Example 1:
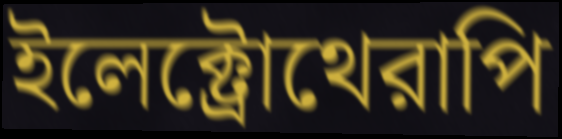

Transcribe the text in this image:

ইলেক্ট্রোথেরাপি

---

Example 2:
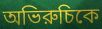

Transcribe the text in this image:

অভিরুচিকে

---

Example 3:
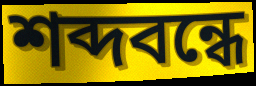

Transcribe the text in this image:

শব্দবন্ধে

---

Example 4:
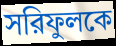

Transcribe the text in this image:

সরিফুলকে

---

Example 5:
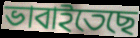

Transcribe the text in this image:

ভাবাইতেছে